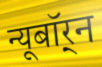
न्यूबॉर्न